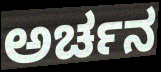
ಅರ್ಚನ